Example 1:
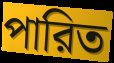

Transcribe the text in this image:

পারিত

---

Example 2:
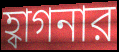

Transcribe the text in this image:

হ্বাগনার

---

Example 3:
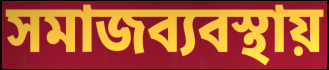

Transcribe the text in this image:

সমাজব্যবস্থায়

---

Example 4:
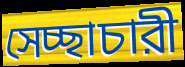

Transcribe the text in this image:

সেচ্ছাচারী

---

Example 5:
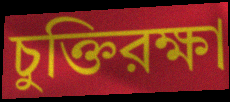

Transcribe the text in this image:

চুক্তিরক্ষা